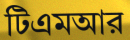
টিএমআর